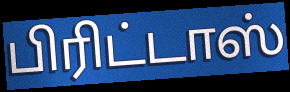
பிரிட்டாஸ்